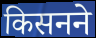
किसनने